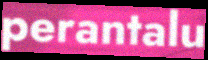
perantalu